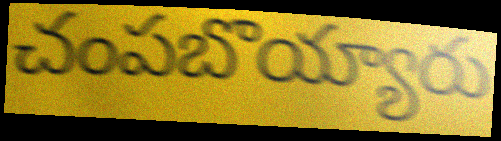
చంపబొయ్యారు